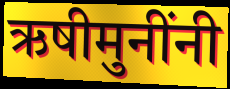
ऋषीमुनींनी